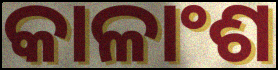
କାଳାଂଶ